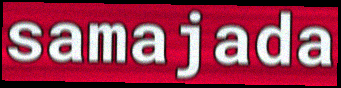
samajada